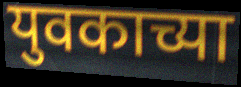
युवकाच्या